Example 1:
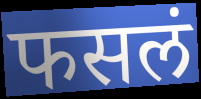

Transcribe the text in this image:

फसलं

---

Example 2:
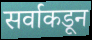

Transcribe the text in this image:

सर्वाकडून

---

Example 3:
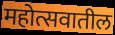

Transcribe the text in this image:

महोत्सवातील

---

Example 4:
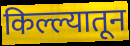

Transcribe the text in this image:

किल्ल्यातून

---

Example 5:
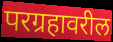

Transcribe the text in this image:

परग्रहावरील